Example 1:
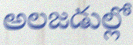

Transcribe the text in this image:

అలజడుల్లో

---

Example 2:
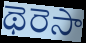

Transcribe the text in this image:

థెరెసా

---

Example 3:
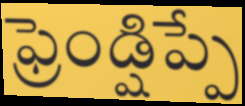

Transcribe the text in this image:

ఫ్రెండ్షిప్పే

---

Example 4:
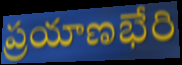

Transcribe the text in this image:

ప్రయాణభేరి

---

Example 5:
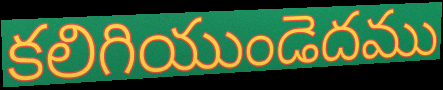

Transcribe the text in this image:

కలిగియుండెదము